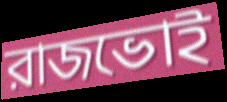
রাজভোই